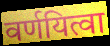
वर्णयित्वा